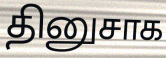
தினுசாக